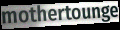
mothertounge